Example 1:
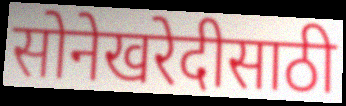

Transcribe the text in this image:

सोनेखरेदीसाठी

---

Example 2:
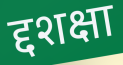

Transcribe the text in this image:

द्दशक्षा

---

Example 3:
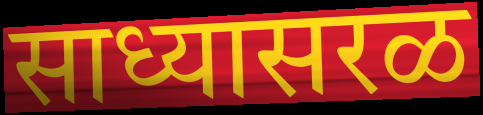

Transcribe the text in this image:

साध्यासरळ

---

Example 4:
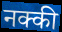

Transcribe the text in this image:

नक्की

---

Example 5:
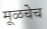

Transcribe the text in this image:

मूळचेच